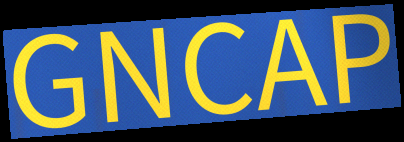
GNCAP